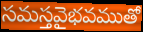
సమస్తవైభవముతో